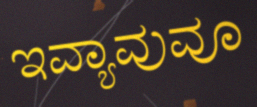
ಇವ್ಯಾವುವೂ